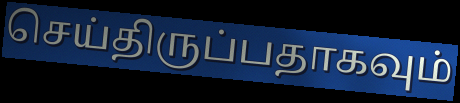
செய்திருப்பதாகவும்